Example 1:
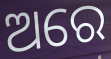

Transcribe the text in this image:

ଅରେ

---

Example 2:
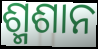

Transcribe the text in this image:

ଶ୍ମଶାନ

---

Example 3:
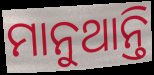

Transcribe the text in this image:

ମାନୁଥାନ୍ତି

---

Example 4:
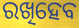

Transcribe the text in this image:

ରଖିହେବ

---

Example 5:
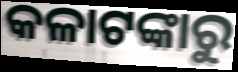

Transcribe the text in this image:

କଳାଟଙ୍କାରୁ